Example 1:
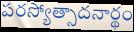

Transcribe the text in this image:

పరస్యోత్సాదనార్థం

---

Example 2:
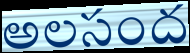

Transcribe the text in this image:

అలసంద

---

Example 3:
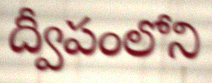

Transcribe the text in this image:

ద్వీపంలోని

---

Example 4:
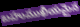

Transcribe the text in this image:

బహుముఖీయమైన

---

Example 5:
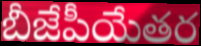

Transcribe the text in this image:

బీజేపీయేతర